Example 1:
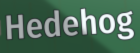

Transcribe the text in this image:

Hedehog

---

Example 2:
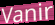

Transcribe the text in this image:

Vanir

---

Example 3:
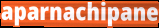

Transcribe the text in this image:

aparnachipane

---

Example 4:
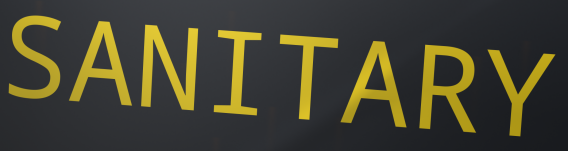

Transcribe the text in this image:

SANITARY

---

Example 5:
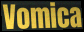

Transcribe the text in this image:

Vomica